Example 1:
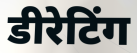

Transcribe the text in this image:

डीरेटिंग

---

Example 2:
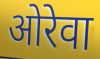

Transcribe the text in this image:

ओरेवा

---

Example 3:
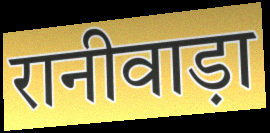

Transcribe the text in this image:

रानीवाड़ा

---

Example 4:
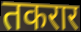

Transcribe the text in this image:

तकरार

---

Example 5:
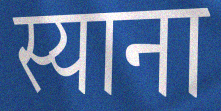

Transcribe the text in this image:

स्याना